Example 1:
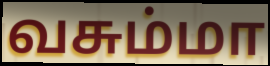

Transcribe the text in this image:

வசும்மா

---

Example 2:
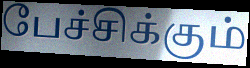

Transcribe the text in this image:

பேச்சிக்கும்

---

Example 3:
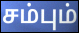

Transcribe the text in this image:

சம்பும்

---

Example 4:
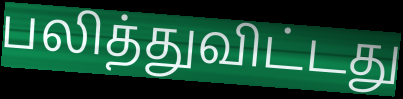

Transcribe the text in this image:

பலித்துவிட்டது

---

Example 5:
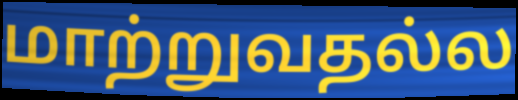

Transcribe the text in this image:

மாற்றுவதல்ல